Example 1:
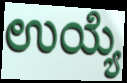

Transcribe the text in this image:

ಉಯ್ಯೆ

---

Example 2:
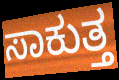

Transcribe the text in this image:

ಸಾಕುತ್ತ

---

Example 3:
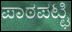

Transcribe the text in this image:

ಪಾಠಪಟ್ಟಿ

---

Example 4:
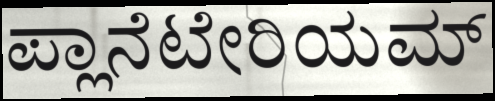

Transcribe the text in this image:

ಪ್ಲಾನೆಟೇರಿಯಮ್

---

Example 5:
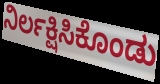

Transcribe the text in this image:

ನಿರ್ಲಕ್ಷಿಸಿಕೊಂಡು